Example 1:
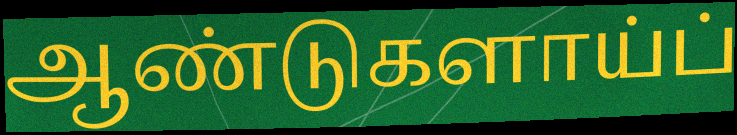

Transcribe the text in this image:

ஆண்டுகளாய்ப்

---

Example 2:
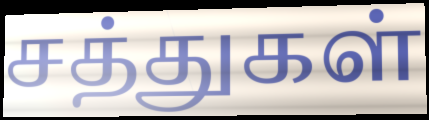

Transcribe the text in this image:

சத்துகள்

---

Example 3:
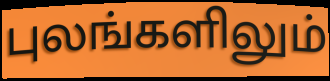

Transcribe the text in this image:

புலங்களிலும்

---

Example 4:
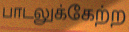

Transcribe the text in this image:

பாடலுக்கேற்ற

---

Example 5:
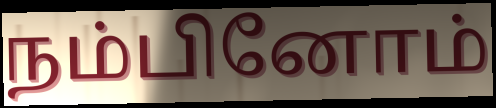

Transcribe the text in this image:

நம்பினோம்